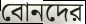
বোনদের